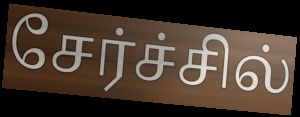
சேர்ச்சில்